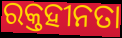
ରକ୍ତହୀନତା